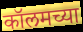
कॉलमच्या